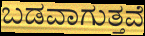
ಬಡವಾಗುತ್ತವೆ